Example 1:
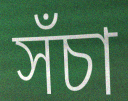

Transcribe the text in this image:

সঁচা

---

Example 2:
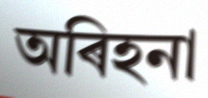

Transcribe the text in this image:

অৰিহনা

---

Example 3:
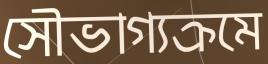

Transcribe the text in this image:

সৌভাগ্যক্ৰমে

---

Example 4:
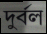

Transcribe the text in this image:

দুৰ্বল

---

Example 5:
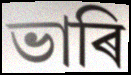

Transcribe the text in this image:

ভাৰি